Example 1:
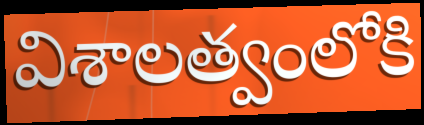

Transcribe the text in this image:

విశాలత్వంలోకి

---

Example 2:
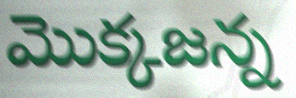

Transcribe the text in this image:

మొక్కజన్న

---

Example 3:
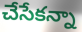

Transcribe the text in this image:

చేసేకన్నా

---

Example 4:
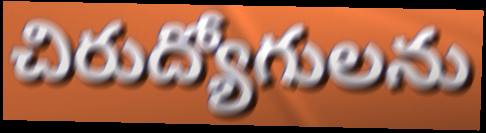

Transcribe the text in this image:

చిరుద్యోగులను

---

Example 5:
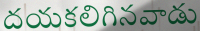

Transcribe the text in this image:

దయకలిగినవాడు